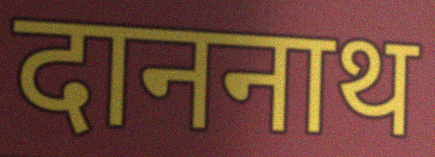
दाननाथ